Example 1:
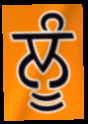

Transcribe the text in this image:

ਲੂੰ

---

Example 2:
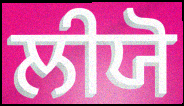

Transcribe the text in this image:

ਲੀਯੋ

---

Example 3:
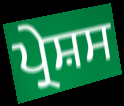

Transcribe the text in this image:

ਪ੍ਰੇਸ਼ਸ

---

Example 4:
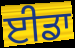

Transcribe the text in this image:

ਈਡਾ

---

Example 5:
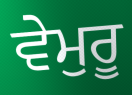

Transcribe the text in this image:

ਵੇਮੁਰੂ